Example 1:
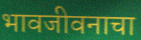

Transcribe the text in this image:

भावजीवनाचा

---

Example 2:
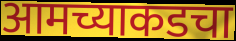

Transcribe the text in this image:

आमच्याकडचा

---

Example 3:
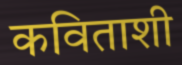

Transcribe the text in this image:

कविताशी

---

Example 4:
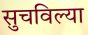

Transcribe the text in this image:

सुचविल्या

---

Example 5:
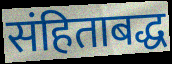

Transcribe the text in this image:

संहिताबद्ध